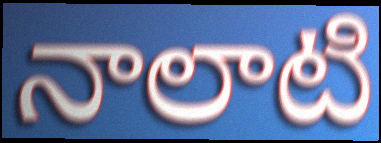
నాలాటి